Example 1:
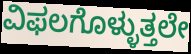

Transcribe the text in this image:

ವಿಫಲಗೊಳ್ಳುತ್ತಲೇ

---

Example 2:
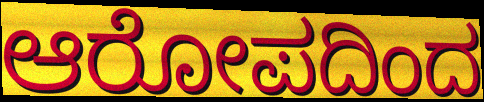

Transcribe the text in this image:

ಆರೋಪದಿಂದ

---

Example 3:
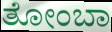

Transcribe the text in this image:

ತೋಂಬಾ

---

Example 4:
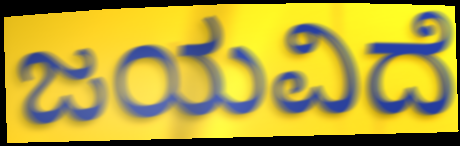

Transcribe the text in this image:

ಜಯವಿದೆ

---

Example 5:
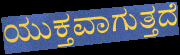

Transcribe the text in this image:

ಯುಕ್ತವಾಗುತ್ತದೆ